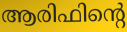
ആരിഫിന്റെ